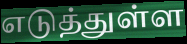
எடுத்துள்ள